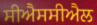
ਸੀਐਸਸੀਐਲ